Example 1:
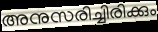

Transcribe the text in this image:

അനുസരിച്ചിരിക്കും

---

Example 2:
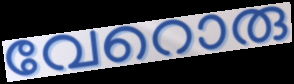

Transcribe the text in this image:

വേറൊരു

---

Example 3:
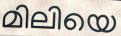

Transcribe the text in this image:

മിലിയെ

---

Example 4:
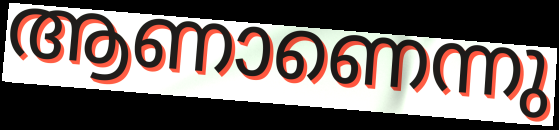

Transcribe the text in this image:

ആണാണെന്നു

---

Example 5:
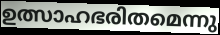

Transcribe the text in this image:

ഉത്സാഹഭരിതമെന്നു